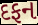
દફન